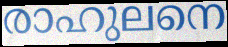
രാഹുലനെ